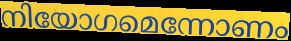
നിയോഗമെന്നോണം